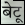
बेटू